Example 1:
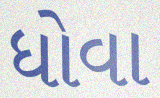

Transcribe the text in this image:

ધોવા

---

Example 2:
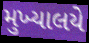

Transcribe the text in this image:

મુખ્યાલયે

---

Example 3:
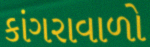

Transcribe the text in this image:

કાંગરાવાળો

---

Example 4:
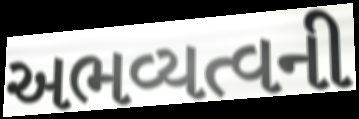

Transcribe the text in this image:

અભવ્યત્વની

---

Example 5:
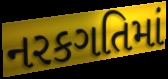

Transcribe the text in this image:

નરકગતિમાં